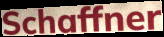
Schaffner